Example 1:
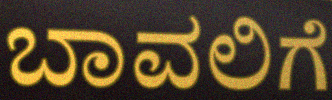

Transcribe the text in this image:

ಬಾವಲಿಗೆ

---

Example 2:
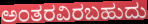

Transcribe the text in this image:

ಅಂತರವಿರಬಹುದು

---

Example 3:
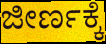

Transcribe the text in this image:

ಜೀರ್ಣಕ್ಕೆ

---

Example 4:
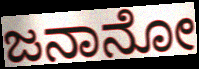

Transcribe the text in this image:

ಜನಾನೋ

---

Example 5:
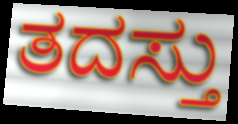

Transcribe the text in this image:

ತದಸ್ತು